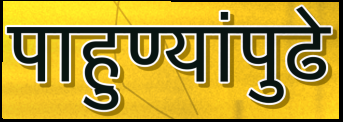
पाहुण्यांपुढे